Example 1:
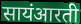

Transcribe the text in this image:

सायंआरती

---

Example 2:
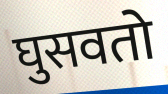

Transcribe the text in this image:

घुसवतो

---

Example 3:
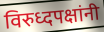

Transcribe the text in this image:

विरुध्दपक्षांनी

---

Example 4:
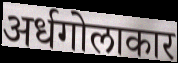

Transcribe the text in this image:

अर्धगोलाकार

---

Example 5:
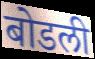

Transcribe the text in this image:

बोडली